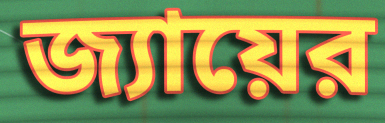
জ্যায়ের